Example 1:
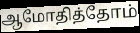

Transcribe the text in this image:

ஆமோதித்தோம்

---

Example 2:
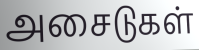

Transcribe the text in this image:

அசைடுகள்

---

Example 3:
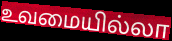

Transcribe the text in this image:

உவமையில்லா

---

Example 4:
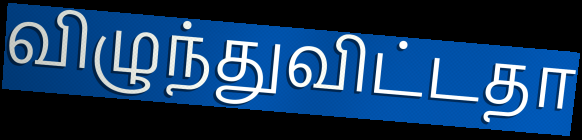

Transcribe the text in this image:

விழுந்துவிட்டதா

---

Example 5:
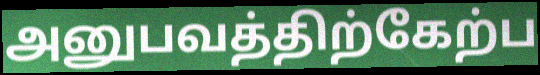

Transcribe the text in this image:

அனுபவத்திற்கேற்ப